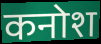
कनोश